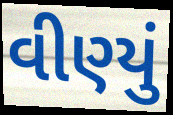
વીણ્યું